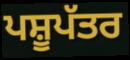
ਪਸ਼ੂਪੱਤਰ